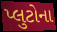
પ્લુટોના